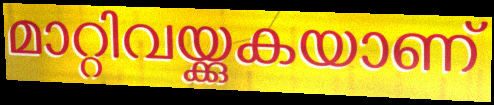
മാറ്റിവയ്ക്കുകയാണ്